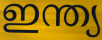
ഇന്ത്യ